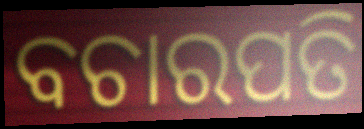
ବଚାରପତି